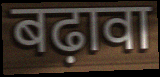
बढ़ावा